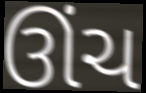
ઊંચ